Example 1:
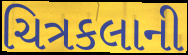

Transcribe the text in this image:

ચિત્રકલાની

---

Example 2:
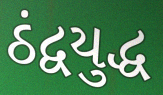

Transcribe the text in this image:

ઠંદ્વયુદ્ધ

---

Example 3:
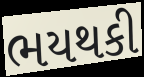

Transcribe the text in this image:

ભયથકી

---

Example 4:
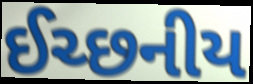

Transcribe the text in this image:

ઈચ્છનીય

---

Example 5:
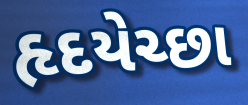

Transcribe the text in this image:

હૃદયેચ્છા